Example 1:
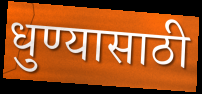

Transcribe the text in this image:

धुण्यासाठी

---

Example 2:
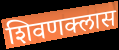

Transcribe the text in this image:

शिवणक्लास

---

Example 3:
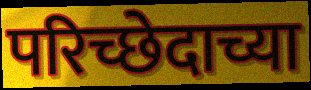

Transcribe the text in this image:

परिच्छेदाच्या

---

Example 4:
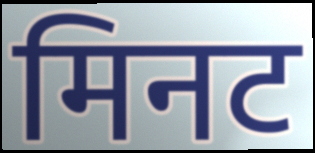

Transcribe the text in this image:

मिनट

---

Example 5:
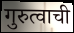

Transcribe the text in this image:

गुरुत्वाची